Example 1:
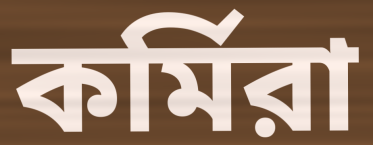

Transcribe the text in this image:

কর্মিরা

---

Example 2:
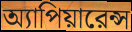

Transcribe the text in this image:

অ্যাপিয়ারেন্স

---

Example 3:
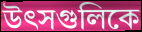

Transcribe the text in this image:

উৎসগুলিকে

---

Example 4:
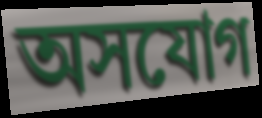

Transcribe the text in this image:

অসযোগ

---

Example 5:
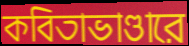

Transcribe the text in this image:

কবিতাভাণ্ডারে